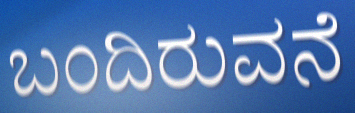
ಬಂದಿರುವನೆ